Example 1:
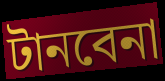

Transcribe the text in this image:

টানবেনা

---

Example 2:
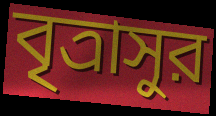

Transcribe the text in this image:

বৃত্রাসুর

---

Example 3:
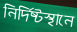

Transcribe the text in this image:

নির্দিষ্টস্থানে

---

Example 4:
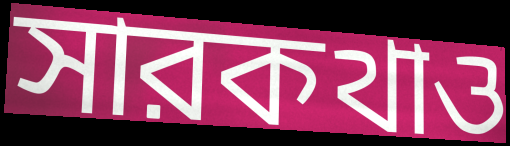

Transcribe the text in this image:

সারকথাও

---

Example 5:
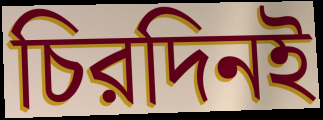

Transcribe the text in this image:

চিরদিনই